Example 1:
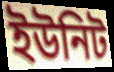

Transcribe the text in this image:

ইউনিট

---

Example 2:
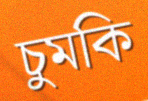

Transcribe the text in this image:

চুমকি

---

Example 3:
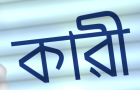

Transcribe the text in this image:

কাৱী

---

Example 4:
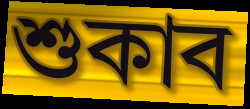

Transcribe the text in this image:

শুকাব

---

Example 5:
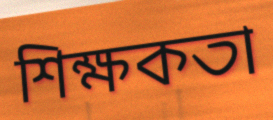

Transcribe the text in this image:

শিক্ষকতা